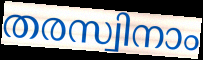
തരസ്വിനാം